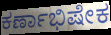
ಕರ್ಣಾಭಿಷೇಕ